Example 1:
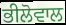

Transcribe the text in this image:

ਭੀਲੋਵਾਲ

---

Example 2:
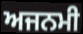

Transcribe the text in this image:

ਅਜਨਮੀ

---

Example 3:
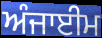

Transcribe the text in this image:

ਅੰਜਾਈਮ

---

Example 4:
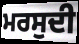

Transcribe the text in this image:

ਮਰਸੁਦੀ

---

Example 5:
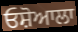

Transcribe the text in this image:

ਓਸ਼ੋਆਲਾ